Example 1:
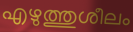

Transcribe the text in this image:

എഴുത്തുശീലം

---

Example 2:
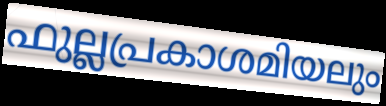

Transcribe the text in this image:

ഫുല്ലപ്രകാശമിയലും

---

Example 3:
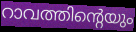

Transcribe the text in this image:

റാവത്തിന്റെയും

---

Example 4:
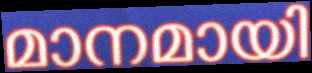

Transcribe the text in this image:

മാനമായി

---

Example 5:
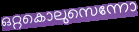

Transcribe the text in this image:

ഒറ്റകൊലുസെന്നോ